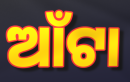
ଆଁଟା